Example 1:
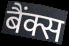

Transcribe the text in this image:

बैंक्स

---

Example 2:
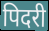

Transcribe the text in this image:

पिदरी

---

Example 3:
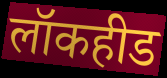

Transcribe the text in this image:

लॉकहीड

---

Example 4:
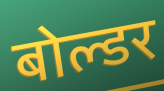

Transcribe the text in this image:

बोल्डर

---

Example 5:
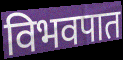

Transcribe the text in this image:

विभवपात